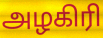
அழகிரி